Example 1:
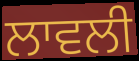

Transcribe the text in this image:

ਲਾਵਲੀ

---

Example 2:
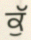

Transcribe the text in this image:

ਕੁੱ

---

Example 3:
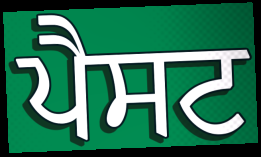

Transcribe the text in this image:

ਪੈਸਟ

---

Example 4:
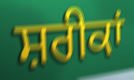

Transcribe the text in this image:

ਸ਼ਰੀਕਾਂ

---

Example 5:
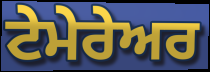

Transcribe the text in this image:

ਟੇਮੇਰੇਅਰ